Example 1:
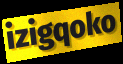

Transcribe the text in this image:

izigqoko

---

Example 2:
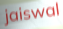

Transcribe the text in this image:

jaiswal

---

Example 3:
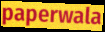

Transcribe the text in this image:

paperwala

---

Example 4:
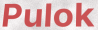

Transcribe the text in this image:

Pulok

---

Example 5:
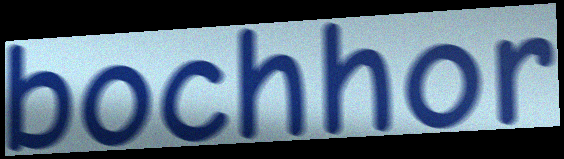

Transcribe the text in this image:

bochhor